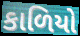
કાળિયો